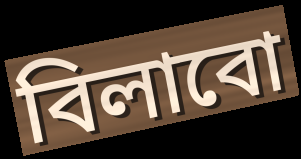
বিলাবো